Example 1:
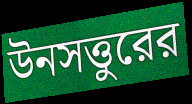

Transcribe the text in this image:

উনসত্তুরের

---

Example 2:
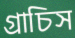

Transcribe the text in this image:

গ্রাচিস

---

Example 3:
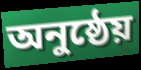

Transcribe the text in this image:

অনুষ্ঠেয়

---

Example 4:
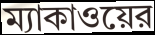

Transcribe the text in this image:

ম্যাকাওয়ের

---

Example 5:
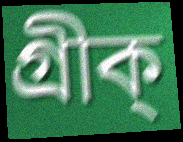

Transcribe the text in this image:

গ্রীক্